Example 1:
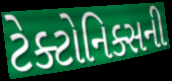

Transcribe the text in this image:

ટેક્ટોનિક્સની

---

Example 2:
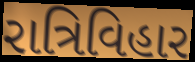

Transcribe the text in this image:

રાત્રિવિહાર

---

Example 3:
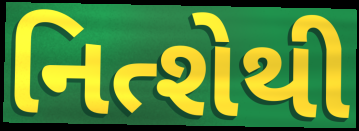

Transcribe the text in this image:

નિત્શેથી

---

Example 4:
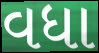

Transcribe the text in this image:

વધા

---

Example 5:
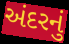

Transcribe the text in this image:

અંદરનું